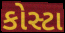
કોસ્ટા